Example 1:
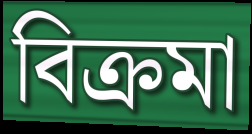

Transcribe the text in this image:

বিক্রমা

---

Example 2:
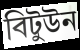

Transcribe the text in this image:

বিটুউন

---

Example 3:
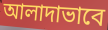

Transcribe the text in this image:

আলাদাভাবে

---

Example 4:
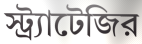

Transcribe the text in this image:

স্ট্র্যাটেজির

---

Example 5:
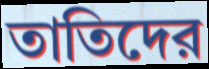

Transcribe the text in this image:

তাতিদের